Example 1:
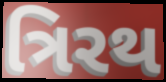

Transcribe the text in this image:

ત્રિરથ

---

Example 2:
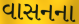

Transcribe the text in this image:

વાસનના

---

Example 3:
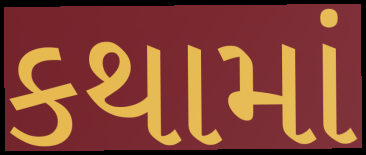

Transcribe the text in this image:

કથામાં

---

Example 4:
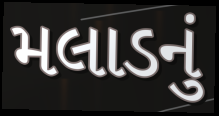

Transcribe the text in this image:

મલાડનું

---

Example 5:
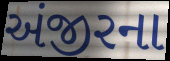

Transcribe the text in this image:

અંજીરના